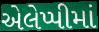
એલેપ્પીમાં